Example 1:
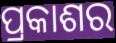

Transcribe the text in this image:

ପ୍ରକାଶର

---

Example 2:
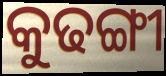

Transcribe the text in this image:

କୁଢଙ୍ଗୀ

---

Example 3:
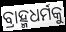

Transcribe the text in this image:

ବ୍ରାହ୍ମଧର୍ମକୁ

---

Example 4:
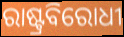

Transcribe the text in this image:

ରାଷ୍ଟ୍ରବିରୋଧୀ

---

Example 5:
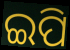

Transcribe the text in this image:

ଇପି